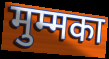
मुम्मका